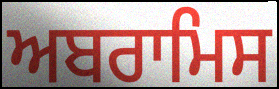
ਅਬਰਾਮਿਸ